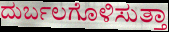
ದುರ್ಬಲಗೊಳಿಸುತ್ತಾ